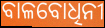
ବାଳବୋଧିନୀ